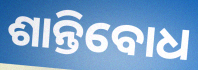
ଶାନ୍ତିବୋଧ